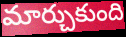
మార్చుకుంది